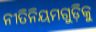
ନୀତିନିୟମଗୁଡ଼ିକୁ